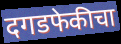
दगडफेकीचा